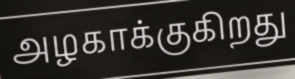
அழகாக்குகிறது